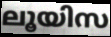
ലൂയിസ